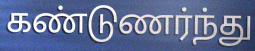
கண்டுணர்ந்து